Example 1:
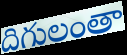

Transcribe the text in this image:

దిగులంతా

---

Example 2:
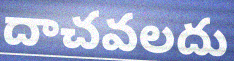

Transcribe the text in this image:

దాచవలదు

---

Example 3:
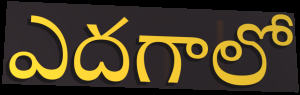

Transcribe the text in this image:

ఎదగాలో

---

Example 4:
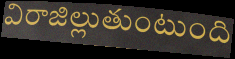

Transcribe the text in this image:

విరాజిల్లుతుంటుంది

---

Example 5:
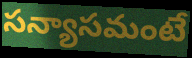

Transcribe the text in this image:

సన్యాసమంటే